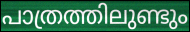
പാത്രത്തിലുണ്ടും